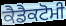
ਕੈਡੈਕਟੋਮੀ